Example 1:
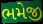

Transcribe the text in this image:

ભમેજી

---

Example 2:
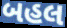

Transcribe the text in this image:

બહલ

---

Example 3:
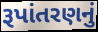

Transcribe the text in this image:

રૂપાંતરણનું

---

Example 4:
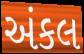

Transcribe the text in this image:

અંકલ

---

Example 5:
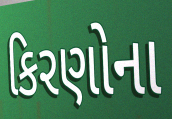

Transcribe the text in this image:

કિરણોના